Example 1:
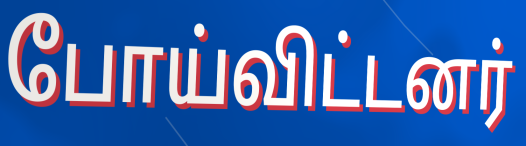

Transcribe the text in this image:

போய்விட்டனர்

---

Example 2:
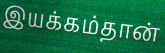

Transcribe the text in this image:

இயக்கம்தான்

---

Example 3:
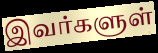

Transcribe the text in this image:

இவர்களுள்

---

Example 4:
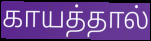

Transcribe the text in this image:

காயத்தால்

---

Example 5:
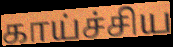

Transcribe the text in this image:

காய்ச்சிய